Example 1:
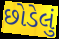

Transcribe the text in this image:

છોડેલું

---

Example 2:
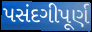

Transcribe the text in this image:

પસંદગીપૂર્ણ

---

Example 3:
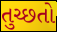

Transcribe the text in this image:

તુચ્છતો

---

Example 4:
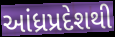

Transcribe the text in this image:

આંધ્રપ્રદેશથી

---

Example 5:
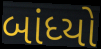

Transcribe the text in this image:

બાંધ્યો